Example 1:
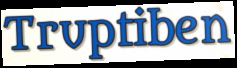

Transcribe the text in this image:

Truptiben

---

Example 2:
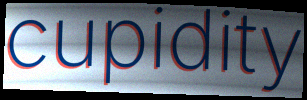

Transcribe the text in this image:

cupidity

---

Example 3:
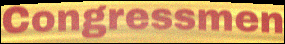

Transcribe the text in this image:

Congressmen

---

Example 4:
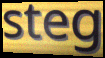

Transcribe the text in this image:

steg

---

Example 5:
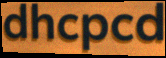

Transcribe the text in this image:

dhcpcd